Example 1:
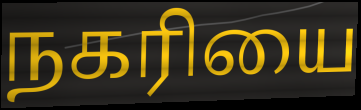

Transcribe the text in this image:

நகரியை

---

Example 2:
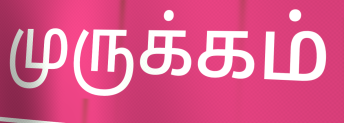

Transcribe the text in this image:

முருக்கம்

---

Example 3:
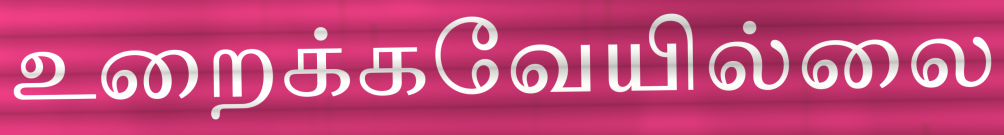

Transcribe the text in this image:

உறைக்கவேயில்லை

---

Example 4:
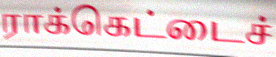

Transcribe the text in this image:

ராக்கெட்டைச்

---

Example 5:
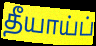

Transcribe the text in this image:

தீயாய்ப்